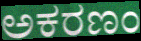
ಅಕರಣಂ